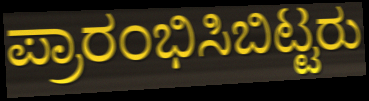
ಪ್ರಾರಂಭಿಸಿಬಿಟ್ಟರು